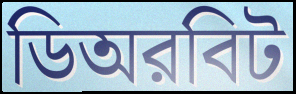
ডিঅরবিট